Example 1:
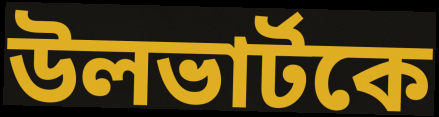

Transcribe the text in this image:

উলভার্টকে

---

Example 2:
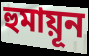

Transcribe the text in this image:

হুমায়ূন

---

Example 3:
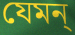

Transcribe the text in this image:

যেমন্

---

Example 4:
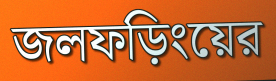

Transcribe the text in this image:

জলফড়িংয়ের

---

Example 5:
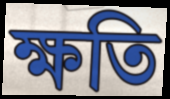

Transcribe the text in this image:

ক্ষতি